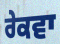
ਰੇਕਵਾ